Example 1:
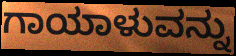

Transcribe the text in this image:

ಗಾಯಾಳುವನ್ನು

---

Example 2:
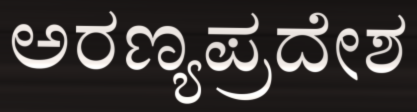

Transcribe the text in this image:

ಅರಣ್ಯಪ್ರದೇಶ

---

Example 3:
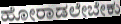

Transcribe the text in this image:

ಹೋರಾಡಲೇಬೇಕು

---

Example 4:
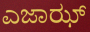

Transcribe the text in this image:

ಎಜಾಝ್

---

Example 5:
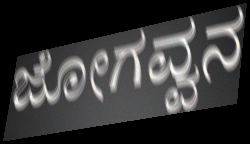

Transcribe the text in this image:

ಜೋಗವ್ವನ